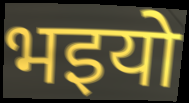
भइयो